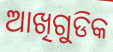
ଆଖିଗୁଡିକ